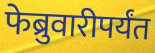
फेब्रुवारीपर्यंत